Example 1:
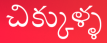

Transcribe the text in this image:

చిక్కుళ్ళ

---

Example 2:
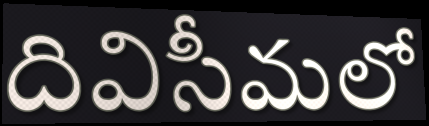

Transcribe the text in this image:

దివిసీమలో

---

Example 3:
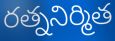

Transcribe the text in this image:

రత్ననిర్మిత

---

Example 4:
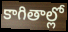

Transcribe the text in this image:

కాగితాల్లో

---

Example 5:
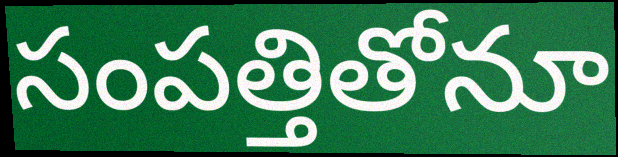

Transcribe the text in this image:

సంపత్తితోనూ